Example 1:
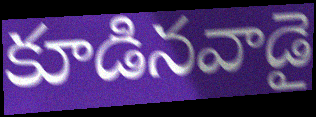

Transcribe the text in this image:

కూడినవాడై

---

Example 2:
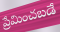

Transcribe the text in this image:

ప్రేమించబడే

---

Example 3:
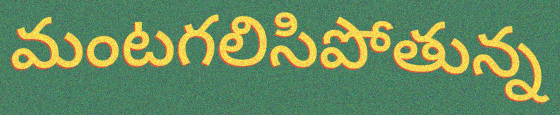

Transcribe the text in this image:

మంటగలిసిపోతున్న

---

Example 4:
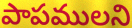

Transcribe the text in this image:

పాపములని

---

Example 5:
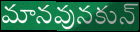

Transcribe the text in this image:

మానవునకున్